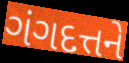
ગંગદત્તને